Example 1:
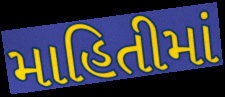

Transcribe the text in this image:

માહિતીમાં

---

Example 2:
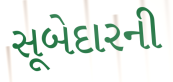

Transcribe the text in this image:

સૂબેદારની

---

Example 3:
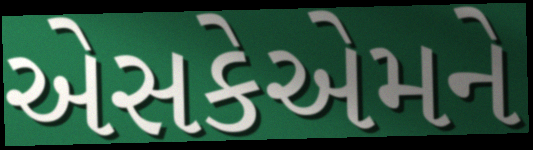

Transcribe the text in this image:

એસકેએમને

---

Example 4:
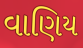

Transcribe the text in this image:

વાણિય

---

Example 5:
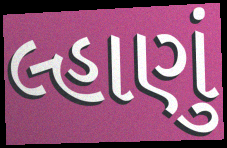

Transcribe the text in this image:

લ્હાણું